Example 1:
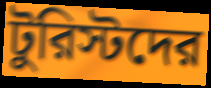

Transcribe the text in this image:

টুরিস্টদের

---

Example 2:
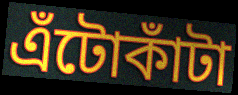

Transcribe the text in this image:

এঁটোকাঁটা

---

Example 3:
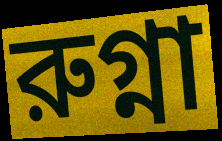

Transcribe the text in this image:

রুগ্না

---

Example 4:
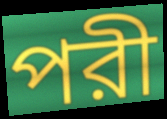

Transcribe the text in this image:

পরী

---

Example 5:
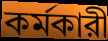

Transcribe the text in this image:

কর্মকারী